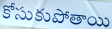
కోసుకుపోతాయి